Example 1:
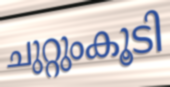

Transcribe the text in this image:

ചുറ്റുംകൂടി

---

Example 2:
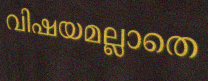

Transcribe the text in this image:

വിഷയമല്ലാതെ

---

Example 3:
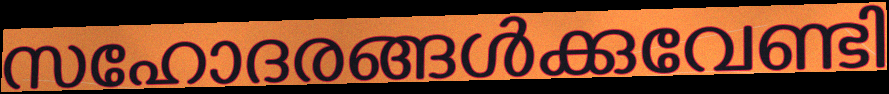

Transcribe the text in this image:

സഹോദരങ്ങൾക്കുവേണ്ടി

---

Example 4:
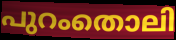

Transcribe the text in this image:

പുറംതൊലി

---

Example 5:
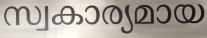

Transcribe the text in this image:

സ്വകാര്യമായ